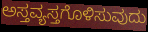
ಅಸ್ತವ್ಯಸ್ತಗೊಳಿಸುವುದು